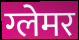
ग्लेमर